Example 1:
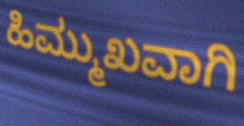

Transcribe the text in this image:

ಹಿಮ್ಮುಖವಾಗಿ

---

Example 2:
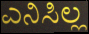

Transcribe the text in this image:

ಎನಿಸಿಲ್ಲ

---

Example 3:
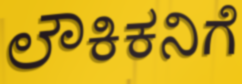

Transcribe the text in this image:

ಲೌಕಿಕನಿಗೆ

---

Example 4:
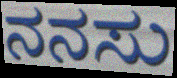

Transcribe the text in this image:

ನನಸು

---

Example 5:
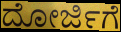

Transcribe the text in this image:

ದೋರ್ಜಿಗೆ